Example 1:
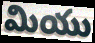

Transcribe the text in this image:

మియు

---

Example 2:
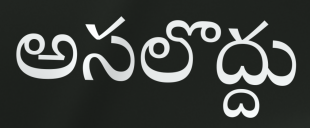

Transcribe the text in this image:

అసలొద్దు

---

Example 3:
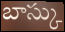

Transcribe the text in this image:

బాస్కు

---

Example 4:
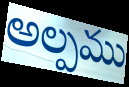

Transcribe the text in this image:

అల్పము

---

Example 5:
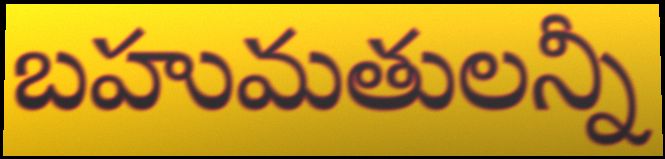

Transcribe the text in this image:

బహుమతులన్నీ